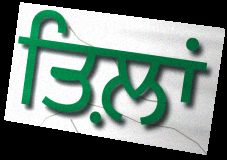
ਤਿਲ਼ਾਂ